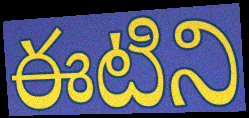
ఈటిని